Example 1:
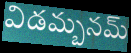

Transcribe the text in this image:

విడమ్బనమ్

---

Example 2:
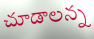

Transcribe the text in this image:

చూడాలన్న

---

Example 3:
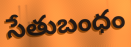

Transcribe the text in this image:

సేతుబంధం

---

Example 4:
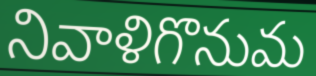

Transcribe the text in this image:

నివాళిగొనుమ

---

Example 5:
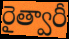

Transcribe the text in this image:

రైత్వారీ